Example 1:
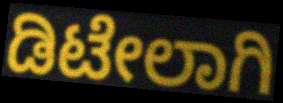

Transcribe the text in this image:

ಡಿಟೇಲಾಗಿ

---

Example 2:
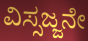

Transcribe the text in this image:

ವಿಸ್ಸಜ್ಜನೇ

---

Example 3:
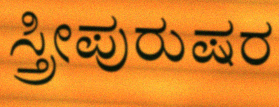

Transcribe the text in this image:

ಸ್ತ್ರೀಪುರುಷರ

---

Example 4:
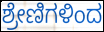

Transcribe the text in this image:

ಶ್ರೇಣಿಗಳಿಂದ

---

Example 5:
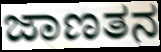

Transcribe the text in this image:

ಜಾಣತನ